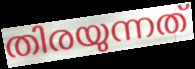
തിരയുന്നത്